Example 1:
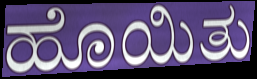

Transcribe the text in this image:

ಹೊಯಿತು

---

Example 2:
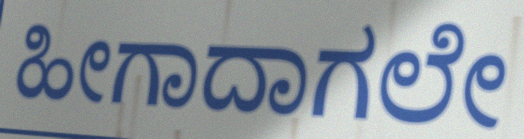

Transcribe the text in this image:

ಹೀಗಾದಾಗಲೇ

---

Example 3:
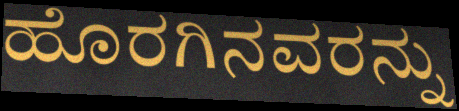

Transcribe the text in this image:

ಹೊರಗಿನವರನ್ನು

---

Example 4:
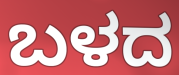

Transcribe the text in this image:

ಬಳದ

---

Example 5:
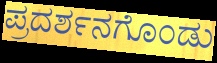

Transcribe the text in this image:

ಪ್ರದರ್ಶನಗೊಂಡು